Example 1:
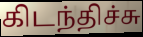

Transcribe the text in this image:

கிடந்திச்சு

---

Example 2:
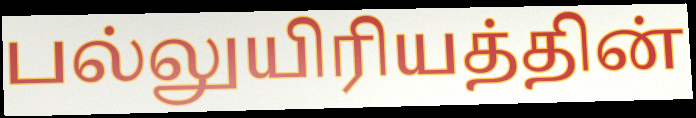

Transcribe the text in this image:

பல்லுயிரியத்தின்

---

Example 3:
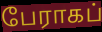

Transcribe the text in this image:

பேராகப்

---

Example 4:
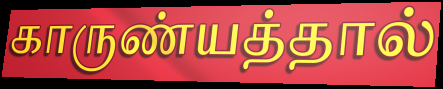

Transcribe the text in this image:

காருண்யத்தால்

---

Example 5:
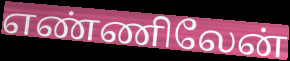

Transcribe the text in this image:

எண்ணிலேன்